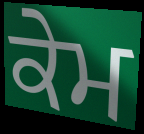
ਕੇਮ